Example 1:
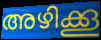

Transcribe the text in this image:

അഴിക്കൂ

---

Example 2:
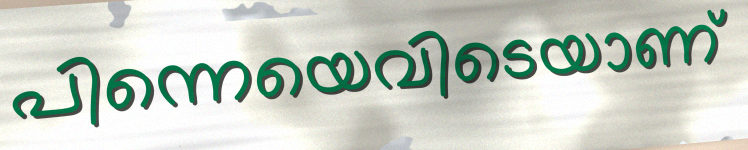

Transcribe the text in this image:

പിന്നെയെവിടെയാണ്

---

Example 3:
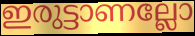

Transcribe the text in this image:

ഇരുട്ടാണല്ലോ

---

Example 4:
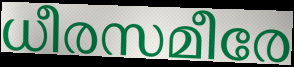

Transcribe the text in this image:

ധീരസമീരേ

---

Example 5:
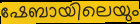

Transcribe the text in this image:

ഷേബായിലെയും